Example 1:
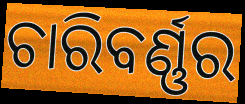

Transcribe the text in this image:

ଚାରିବର୍ଣ୍ଣର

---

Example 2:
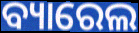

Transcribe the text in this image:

ବ୍ୟାରେଲ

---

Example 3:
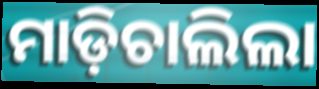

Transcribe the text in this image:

ମାଡ଼ିଚାଲିଲା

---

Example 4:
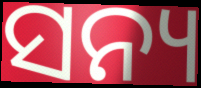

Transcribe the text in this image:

ସନ୍ୟ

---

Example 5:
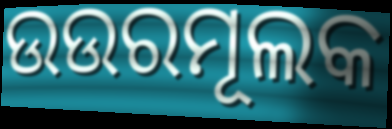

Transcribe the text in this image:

ଉଉରମୂଲକ